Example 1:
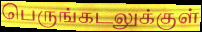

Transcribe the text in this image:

பெருங்கடலுக்குள்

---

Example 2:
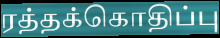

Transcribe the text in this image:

ரத்தக்கொதிப்பு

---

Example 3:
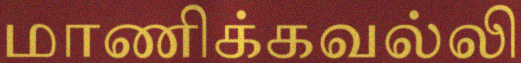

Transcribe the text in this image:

மாணிக்கவல்லி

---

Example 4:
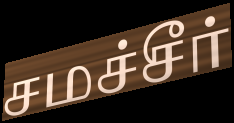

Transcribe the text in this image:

சமச்சீர்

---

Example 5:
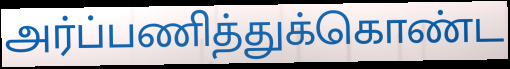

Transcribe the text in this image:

அர்ப்பணித்துக்கொண்ட